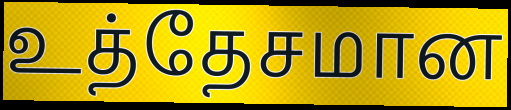
உத்தேசமான